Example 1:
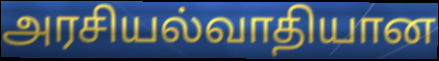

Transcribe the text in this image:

அரசியல்வாதியான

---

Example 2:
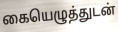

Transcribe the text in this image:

கையெழுத்துடன்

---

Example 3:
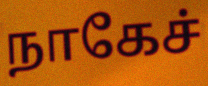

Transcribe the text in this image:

நாகேச்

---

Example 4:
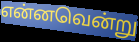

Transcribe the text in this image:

என்னவென்று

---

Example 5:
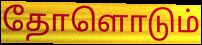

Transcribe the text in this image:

தோளொடும்